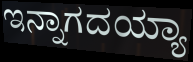
ಇನ್ನಾಗದಯ್ಯಾ